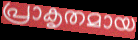
പ്രാകൃതമായ